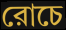
রোচে